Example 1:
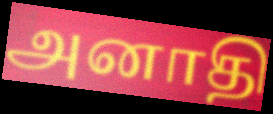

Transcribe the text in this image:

அனாதி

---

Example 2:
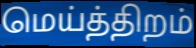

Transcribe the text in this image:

மெய்த்திறம்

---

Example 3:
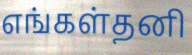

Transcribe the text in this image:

எங்கள்தனி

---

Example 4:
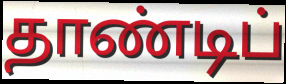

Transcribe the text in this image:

தாண்டிப்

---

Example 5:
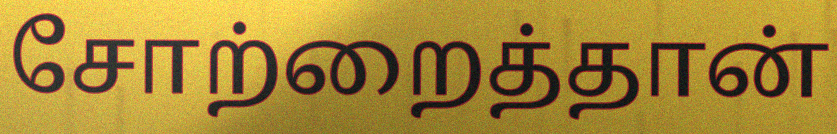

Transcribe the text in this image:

சோற்றைத்தான்